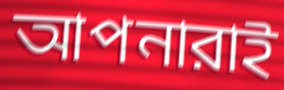
আপনারাই